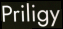
Priligy